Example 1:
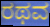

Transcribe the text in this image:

ರಥವ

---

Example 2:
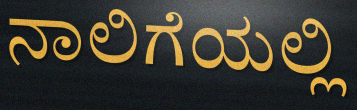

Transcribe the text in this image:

ನಾಲಿಗೆಯಲ್ಲಿ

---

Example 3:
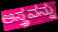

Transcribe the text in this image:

ಅಸ್ತ್ರವನ್ನು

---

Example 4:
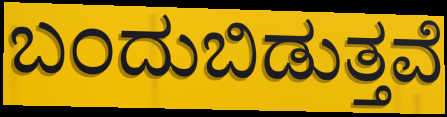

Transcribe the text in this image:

ಬಂದುಬಿಡುತ್ತವೆ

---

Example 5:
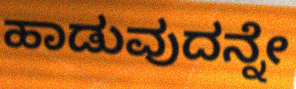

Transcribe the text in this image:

ಹಾಡುವುದನ್ನೇ